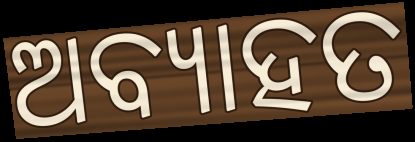
ଅବ୍ୟାହତ